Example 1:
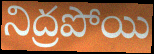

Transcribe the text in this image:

నిద్రపోయి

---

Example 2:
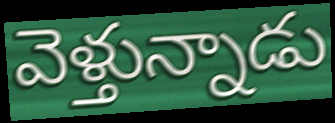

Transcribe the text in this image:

వెళ్తున్నాడు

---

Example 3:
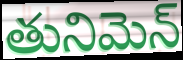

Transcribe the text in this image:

తునిమెన్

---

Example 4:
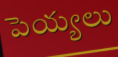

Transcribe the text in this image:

పెయ్యలు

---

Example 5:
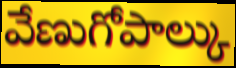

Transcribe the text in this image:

వేణుగోపాల్కు